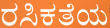
ರಸಿಕತೆಯ